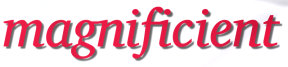
magnificient